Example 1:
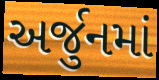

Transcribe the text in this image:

અર્જુનમાં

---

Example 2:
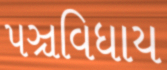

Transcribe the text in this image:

પઞ્ચવિધાય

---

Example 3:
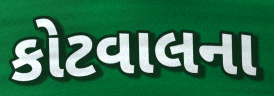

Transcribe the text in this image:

કોટવાલના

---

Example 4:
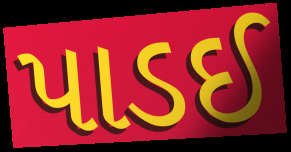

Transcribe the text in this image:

પાડઈ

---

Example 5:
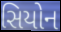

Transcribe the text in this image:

સિયોન